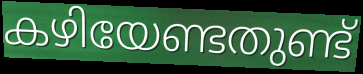
കഴിയേണ്ടതുണ്ട്